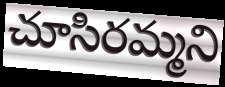
చూసిరమ్మని